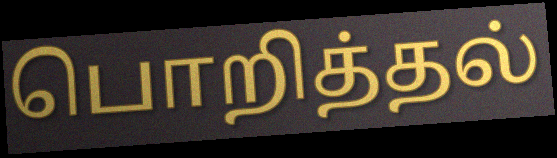
பொறித்தல்